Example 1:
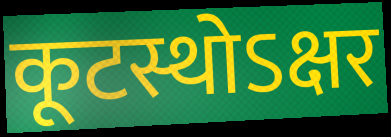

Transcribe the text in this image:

कूटस्थोऽक्षर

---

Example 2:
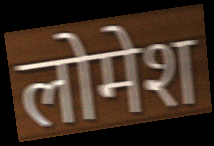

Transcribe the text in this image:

लोमेश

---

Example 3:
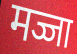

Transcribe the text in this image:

मज्जा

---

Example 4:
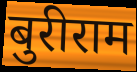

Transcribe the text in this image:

बुरीराम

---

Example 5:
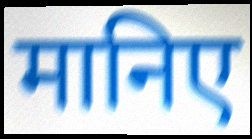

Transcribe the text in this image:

मानिए